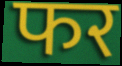
फर